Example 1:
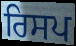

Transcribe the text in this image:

ਰਿਸਪ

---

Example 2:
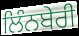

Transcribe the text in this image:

ਲਿੰਨਬੇਰੀ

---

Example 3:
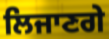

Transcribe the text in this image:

ਲਿਜਾਣਗੇ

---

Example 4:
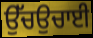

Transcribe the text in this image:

ਉੱਚਉਚਾਈ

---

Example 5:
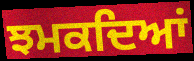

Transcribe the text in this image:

ਝਮਕਦਿਆਂ